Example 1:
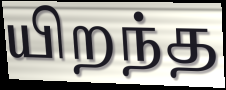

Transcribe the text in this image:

யிறந்த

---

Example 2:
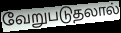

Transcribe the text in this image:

வேறுபடுதலால்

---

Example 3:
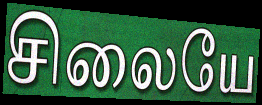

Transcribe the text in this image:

சிலையே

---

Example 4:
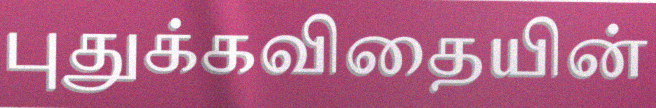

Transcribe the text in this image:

புதுக்கவிதையின்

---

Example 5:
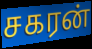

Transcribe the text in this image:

சகரன்